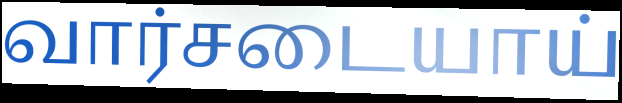
வார்சடையாய்